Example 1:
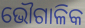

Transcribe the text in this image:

ଭୌଗାଳିକ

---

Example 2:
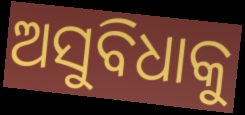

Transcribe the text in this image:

ଅସୁବିଧାକୁ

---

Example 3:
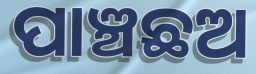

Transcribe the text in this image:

ପାଞ୍ଚଛଅ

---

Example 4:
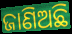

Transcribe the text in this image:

ଜାଣିଅଛି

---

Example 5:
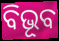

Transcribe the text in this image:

ବିଭୂବ